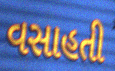
વસાહતી